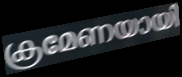
ക്രമേണയായി